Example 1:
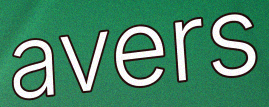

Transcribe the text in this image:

avers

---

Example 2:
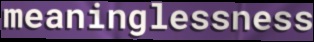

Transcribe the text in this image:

meaninglessness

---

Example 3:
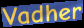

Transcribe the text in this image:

Vadher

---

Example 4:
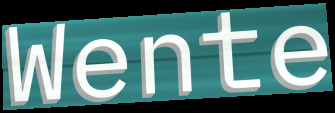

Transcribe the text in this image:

Wente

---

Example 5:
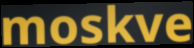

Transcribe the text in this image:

moskve